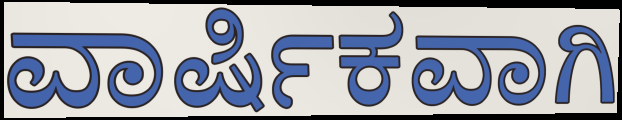
ವಾರ್ಷಿಕವಾಗಿ